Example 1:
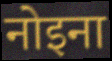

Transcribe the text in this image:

नोइना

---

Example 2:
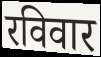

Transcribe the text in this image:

रविवार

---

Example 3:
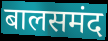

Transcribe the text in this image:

बालसमंद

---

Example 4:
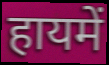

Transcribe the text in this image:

हायमें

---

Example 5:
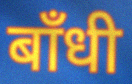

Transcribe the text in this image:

बाँधी